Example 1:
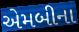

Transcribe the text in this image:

એમબીના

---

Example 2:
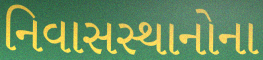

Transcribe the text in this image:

નિવાસસ્થાનોના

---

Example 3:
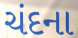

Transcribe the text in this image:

ચંદના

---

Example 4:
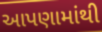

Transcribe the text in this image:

આપણામાંથી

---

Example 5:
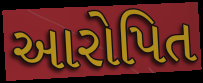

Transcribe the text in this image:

આરોપિત